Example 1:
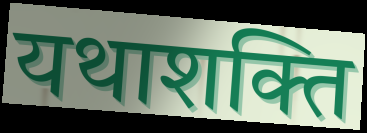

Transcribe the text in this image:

यथाशक्ति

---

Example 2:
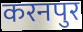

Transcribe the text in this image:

करनपुर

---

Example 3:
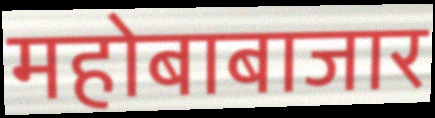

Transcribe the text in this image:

महोबाबाजार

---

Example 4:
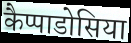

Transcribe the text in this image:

कैप्पाडोसिया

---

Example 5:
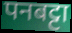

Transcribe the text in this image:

पनबट्टा